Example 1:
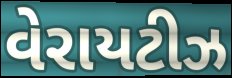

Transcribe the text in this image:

વેરાયટીઝ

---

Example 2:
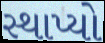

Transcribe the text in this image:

સ્થાપ્યો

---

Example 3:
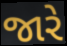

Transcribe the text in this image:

જારે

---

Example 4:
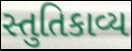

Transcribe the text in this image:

સ્તુતિકાવ્ય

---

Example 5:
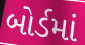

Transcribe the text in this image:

બોર્ડમાં